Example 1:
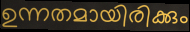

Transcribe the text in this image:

ഉന്നതമായിരിക്കും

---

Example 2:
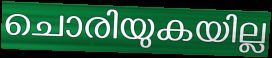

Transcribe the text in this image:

ചൊരിയുകയില്ല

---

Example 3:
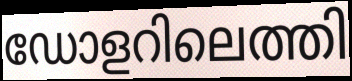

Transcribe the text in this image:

ഡോളറിലെത്തി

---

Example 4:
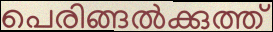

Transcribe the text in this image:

പെരിങ്ങൽക്കുത്ത്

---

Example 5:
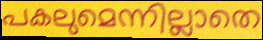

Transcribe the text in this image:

പകലുമെന്നില്ലാതെ